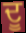
ਦੂ